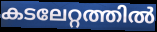
കടലേറ്റത്തിൽ